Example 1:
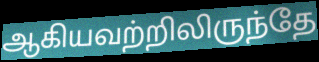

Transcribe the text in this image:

ஆகியவற்றிலிருந்தே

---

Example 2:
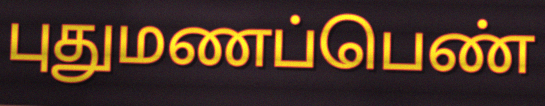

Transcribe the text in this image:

புதுமணப்பெண்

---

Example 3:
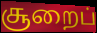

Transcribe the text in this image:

சூறைப்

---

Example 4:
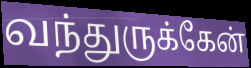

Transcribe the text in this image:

வந்துருக்கேன்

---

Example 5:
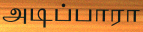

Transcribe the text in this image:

அடிப்பாரா